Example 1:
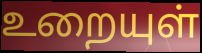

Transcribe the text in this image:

உறையுள்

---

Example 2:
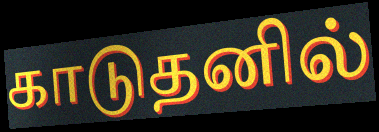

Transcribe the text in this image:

காடுதனில்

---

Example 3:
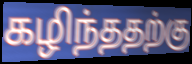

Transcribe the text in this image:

கழிந்ததற்கு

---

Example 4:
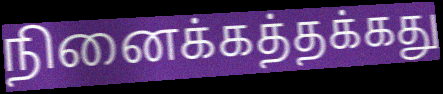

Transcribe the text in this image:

நினைக்கத்தக்கது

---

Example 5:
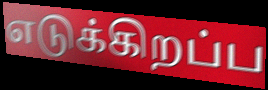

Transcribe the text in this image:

எடுக்கிறப்ப